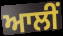
ਆਲੀਂ